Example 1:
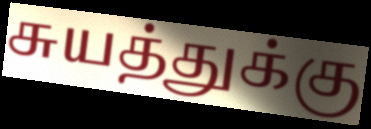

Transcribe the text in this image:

சுயத்துக்கு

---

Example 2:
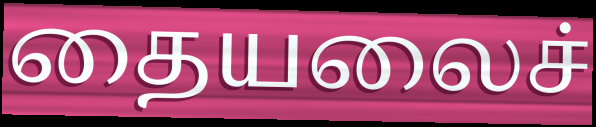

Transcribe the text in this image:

தையலைச்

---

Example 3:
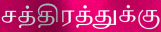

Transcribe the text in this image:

சத்திரத்துக்கு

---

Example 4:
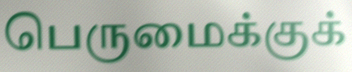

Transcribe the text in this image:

பெருமைக்குக்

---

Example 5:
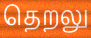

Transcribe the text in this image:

தெறலு